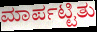
ಮಾರ್ಪಟ್ಟಿತು